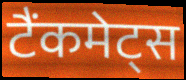
टैंकमेट्स